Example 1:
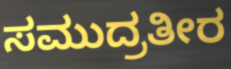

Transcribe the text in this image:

ಸಮುದ್ರತೀರ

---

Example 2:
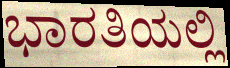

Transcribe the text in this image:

ಭಾರತಿಯಲ್ಲಿ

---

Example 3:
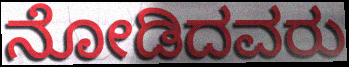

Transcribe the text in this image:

ನೋಡಿದವರು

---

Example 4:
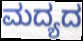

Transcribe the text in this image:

ಮದ್ಯದ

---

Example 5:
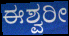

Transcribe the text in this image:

ಈಶ್ವರೀ